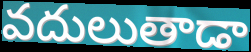
వదులుతాడా